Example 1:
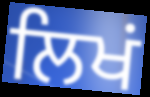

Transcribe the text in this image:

ਲਿਖਂ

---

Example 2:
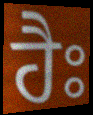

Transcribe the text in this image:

ਹੈਃ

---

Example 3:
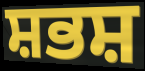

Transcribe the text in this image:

ਸ਼ਭਸ਼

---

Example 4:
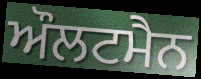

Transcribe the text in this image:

ਔਲਟਮੈਨ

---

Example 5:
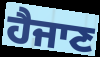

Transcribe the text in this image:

ਹੈਜਾਣ